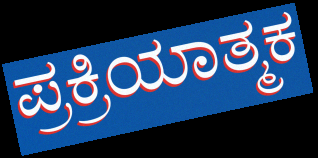
ಪ್ರಕ್ರಿಯಾತ್ಮಕ